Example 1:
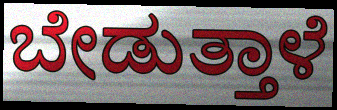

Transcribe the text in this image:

ಬೇಡುತ್ತಾಳೆ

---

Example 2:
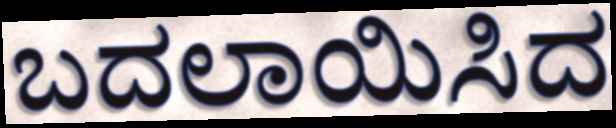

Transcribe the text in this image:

ಬದಲಾಯಿಸಿದ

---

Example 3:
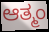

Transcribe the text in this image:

ಆತ್ಮಂ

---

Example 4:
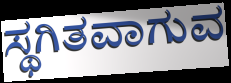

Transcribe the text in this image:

ಸ್ಥಗಿತವಾಗುವ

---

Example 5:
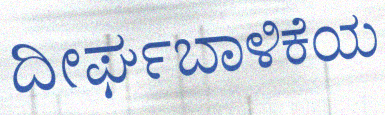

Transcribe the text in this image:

ದೀರ್ಘಬಾಳಿಕೆಯ